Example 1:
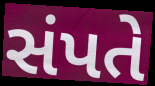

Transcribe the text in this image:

સંપતે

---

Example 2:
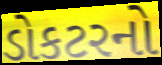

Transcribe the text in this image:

ડોકટરનો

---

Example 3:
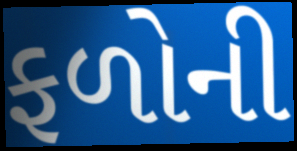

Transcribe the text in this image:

ફળોની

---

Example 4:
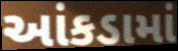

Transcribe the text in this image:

આંકડામાં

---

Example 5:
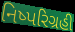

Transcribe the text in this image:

નિષ્પરિગ્રહી